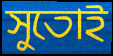
সুতোই